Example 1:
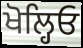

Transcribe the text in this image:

ਖੋਲ੍ਹ੍ਹਿਓ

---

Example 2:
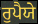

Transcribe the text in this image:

ਰੁਪੈਯੇ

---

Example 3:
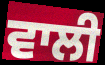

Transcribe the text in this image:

ਵਾਲੀ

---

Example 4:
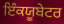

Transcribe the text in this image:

ਇੰਕਯੂਬੇਟਰ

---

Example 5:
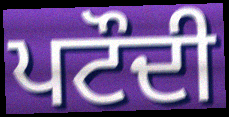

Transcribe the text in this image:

ਪਟੌਦੀ